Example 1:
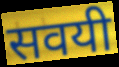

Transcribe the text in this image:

सवयी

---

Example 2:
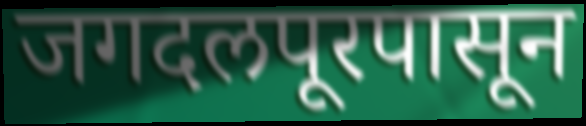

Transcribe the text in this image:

जगदलपूरपासून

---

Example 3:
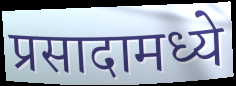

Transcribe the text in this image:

प्रसादामध्ये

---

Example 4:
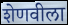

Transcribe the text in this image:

शेणवीला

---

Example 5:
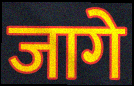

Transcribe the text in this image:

जागे